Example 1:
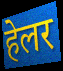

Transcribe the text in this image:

हेलर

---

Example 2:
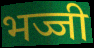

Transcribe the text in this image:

भज्जी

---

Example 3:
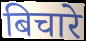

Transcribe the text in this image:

बिचारे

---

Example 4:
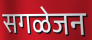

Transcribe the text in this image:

सगळेजन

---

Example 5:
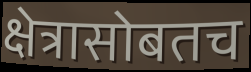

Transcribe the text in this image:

क्षेत्रासोबतच